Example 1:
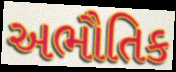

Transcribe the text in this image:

અભૌતિક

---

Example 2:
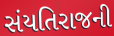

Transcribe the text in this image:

સંયતિરાજની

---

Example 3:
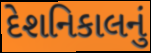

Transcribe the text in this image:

દેશનિકાલનું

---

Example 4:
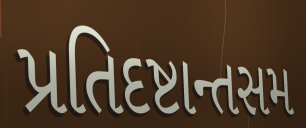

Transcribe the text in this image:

પ્રતિદષ્ટાન્તસમ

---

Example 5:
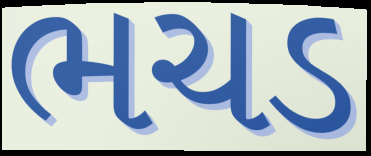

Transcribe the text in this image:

ભચડ